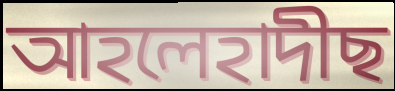
আহলেহাদীছ